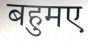
बहुमए